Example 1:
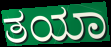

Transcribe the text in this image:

ತಯಾ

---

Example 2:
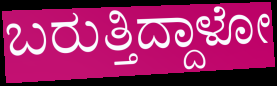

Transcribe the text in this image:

ಬರುತ್ತಿದ್ದಾಳೋ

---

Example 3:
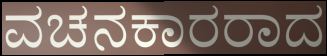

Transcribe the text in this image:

ವಚನಕಾರರಾದ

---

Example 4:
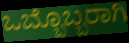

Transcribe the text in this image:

ಒಬ್ಬೊಬ್ಬರಾಗಿ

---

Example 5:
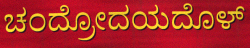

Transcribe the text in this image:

ಚಂದ್ರೋದಯದೊಳ್